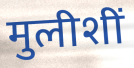
मुलीशीं